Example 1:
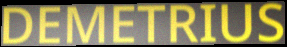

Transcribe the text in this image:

DEMETRIUS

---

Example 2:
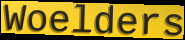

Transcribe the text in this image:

Woelders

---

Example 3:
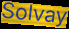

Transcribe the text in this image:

Solvay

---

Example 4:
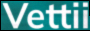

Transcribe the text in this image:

Vettii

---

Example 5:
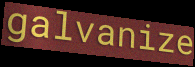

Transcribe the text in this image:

galvanize